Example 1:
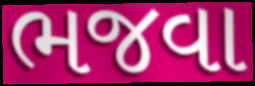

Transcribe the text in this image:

ભજવા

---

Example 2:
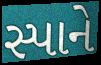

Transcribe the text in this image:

સ્પાને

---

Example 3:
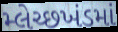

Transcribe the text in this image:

મ્લેચ્છખંડમાં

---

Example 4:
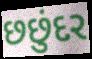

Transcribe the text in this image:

છછુંદર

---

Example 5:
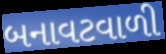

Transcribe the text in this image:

બનાવટવાળી